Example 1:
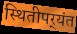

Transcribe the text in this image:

स्थितीपर्यंत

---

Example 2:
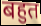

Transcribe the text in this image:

बहुत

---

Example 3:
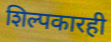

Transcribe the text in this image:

शिल्पकारही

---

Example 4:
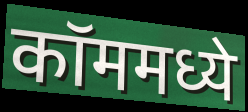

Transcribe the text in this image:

कॉममध्ये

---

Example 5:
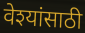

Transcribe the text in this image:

वेश्यांसाठी